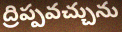
ద్రిప్పవచ్చును